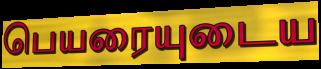
பெயரையுடைய